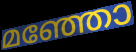
മഞ്ഞോ